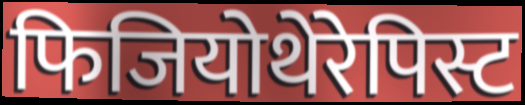
फिजियोथेरेपिस्ट